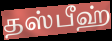
தஸ்பீஹ்